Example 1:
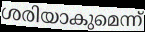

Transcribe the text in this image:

ശരിയാകുമെന്ന്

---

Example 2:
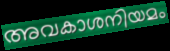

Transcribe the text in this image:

അവകാശനിയമം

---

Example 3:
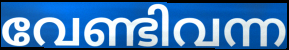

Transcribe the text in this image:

വേണ്ടിവന്ന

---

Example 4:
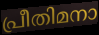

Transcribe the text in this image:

പ്രീതിമനാ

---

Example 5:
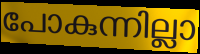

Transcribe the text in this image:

പോകുന്നില്ലാ